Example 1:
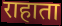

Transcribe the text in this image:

राहाता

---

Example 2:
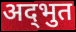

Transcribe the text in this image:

अद्‌भुत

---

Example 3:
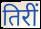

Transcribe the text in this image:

तिरीं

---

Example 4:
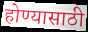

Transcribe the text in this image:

होण्यासाठी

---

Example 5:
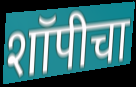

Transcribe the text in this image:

शॉपीचा